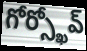
గోర్స్ఖోవ్